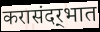
करासंदर्भात